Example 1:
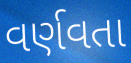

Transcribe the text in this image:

વર્ણવતા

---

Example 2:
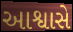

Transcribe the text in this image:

આશ્વાસે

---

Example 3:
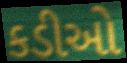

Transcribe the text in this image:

કડીઓ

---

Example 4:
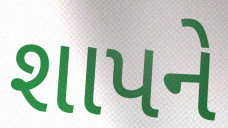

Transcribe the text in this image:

શાપને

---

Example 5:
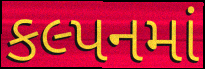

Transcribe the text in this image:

કલ્પનમાં